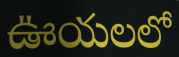
ఊయలలో